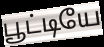
பூட்டியே